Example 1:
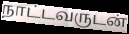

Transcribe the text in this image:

நாட்டவருடன்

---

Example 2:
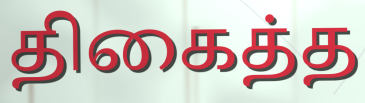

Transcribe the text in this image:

திகைத்த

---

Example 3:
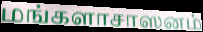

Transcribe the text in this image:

மங்களாசாஸனம்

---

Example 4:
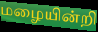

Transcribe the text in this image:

மழையின்றி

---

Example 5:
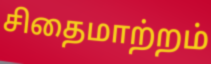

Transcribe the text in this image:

சிதைமாற்றம்